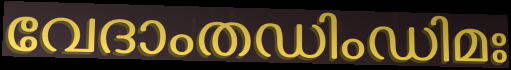
വേദാംതഡിംഡിമഃ